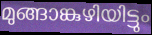
മുങ്ങാങ്കുഴിയിട്ടും